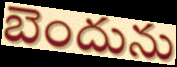
బెందును